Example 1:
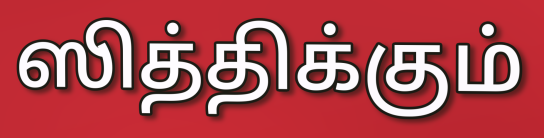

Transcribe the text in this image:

ஸித்திக்கும்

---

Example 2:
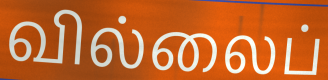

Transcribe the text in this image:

வில்லைப்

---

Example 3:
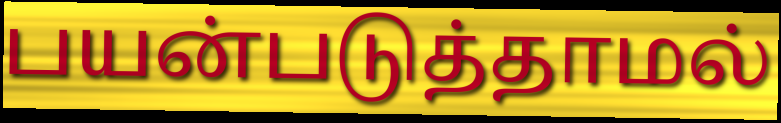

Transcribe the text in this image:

பயன்படுத்தாமல்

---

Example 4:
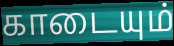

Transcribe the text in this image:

காடையும்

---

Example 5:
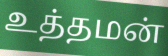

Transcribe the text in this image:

உத்தமன்